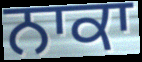
ਨਾਕਾ